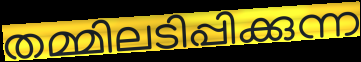
തമ്മിലടിപ്പിക്കുന്ന